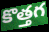
కొత్తగ